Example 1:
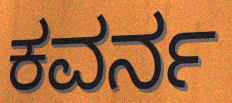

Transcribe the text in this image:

ಕವರ್ನ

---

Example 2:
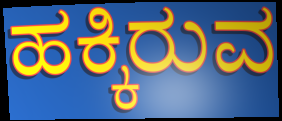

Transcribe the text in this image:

ಹಕ್ಕಿರುವ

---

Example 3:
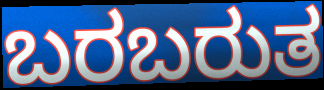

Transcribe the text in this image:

ಬರಬರುತ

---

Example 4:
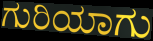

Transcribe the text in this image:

ಗುರಿಯಾಗು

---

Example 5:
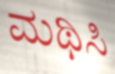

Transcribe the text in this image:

ಮಥಿಸಿ